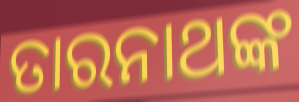
ତାରନାଥଙ୍କ